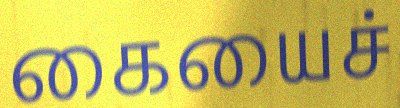
கையைச்